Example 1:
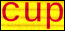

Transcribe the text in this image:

cup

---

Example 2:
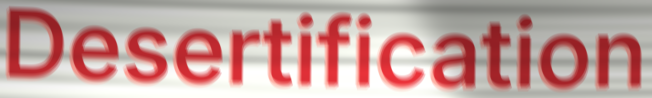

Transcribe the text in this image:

Desertification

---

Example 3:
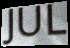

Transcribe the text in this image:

JUL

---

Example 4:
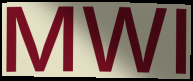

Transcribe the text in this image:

MWI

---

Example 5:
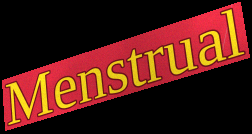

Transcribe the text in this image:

Menstrual